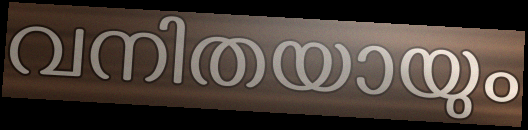
വനിതയായും